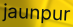
jaunpur